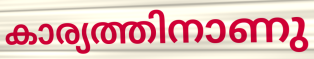
കാര്യത്തിനാണു